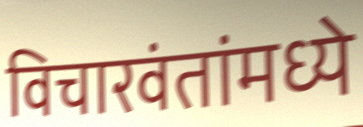
विचारवंतांमध्ये